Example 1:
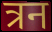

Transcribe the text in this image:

त्रन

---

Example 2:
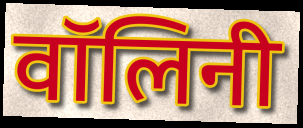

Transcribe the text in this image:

वॉलिनी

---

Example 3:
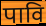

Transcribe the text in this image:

पावि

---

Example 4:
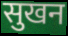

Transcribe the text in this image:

सुखन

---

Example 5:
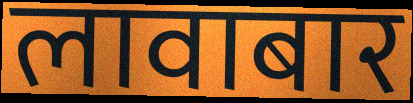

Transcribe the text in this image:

लावाबार